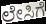
ಲೇಸಿಗೆ